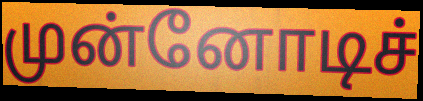
முன்னோடிச்